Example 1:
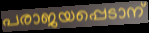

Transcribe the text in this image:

പരാജയപ്പെടാന്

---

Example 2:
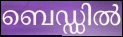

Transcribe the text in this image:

ബെഡ്ഡിൽ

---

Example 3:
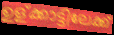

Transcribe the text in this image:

ഉള്ക്കാട്ടിലേക്ക്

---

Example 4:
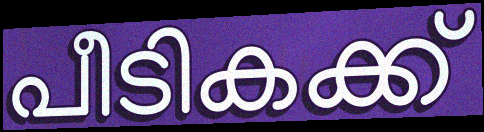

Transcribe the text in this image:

പീടികക്ക്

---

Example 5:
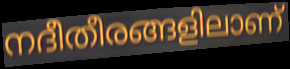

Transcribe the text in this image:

നദീതീരങ്ങളിലാണ്